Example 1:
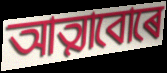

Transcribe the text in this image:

আত্মাবোৰে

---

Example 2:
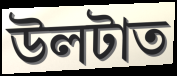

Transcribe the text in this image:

উলটাত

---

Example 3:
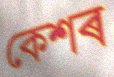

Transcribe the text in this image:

কেশৰ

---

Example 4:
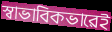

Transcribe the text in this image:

স্বাভাবিকভাৱেই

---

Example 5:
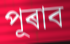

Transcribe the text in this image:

পূৰাব